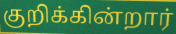
குறிக்கின்றார்